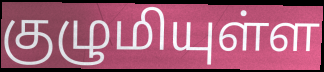
குழுமியுள்ள